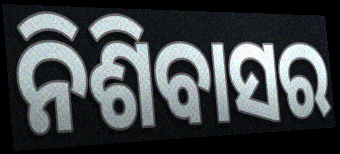
ନିଶିବାସର